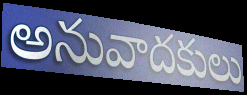
అనువాదకులు